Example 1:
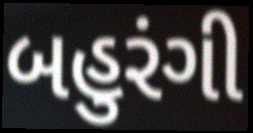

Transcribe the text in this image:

બહુરંગી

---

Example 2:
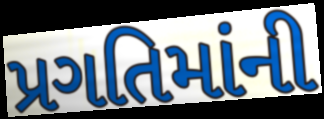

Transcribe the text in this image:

પ્રગતિમાંની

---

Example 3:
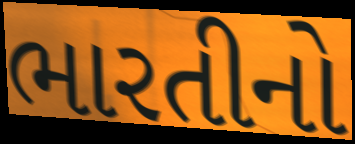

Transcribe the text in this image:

ભારતીનો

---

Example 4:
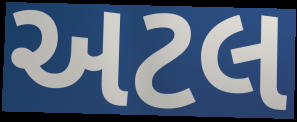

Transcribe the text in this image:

અટલ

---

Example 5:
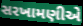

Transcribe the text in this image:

સરખામણીએ